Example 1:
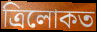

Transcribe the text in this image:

ত্ৰিলোকত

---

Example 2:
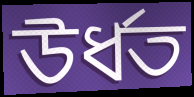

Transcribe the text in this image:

উৰ্ধত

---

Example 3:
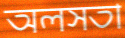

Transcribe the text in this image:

অলসতা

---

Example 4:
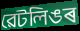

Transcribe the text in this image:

ৱেটলিঙৰ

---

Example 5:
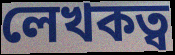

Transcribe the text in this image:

লেখকত্ব